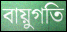
বায়ুগতি